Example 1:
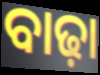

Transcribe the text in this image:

ବାଢ଼ା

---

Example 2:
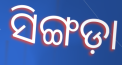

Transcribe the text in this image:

ସିଙ୍ଗଡ଼ା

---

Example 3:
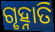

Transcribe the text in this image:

ଗୃହ୍ନାତି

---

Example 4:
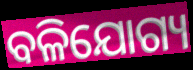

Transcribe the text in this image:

ବଳିଯୋଗ୍ୟ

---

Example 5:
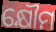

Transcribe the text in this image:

କ୍ଷୌମ